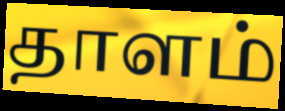
தாளம்